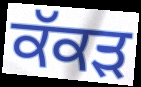
ਕੱਕੜ